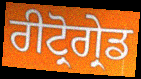
ਰੀਟ੍ਰੋਗ੍ਰੇਡ